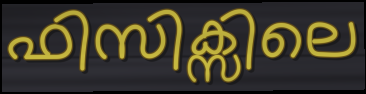
ഫിസിക്സിലെ